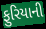
ફુરિયાની